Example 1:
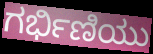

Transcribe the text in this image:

ಗರ್ಭಿಣಿಯು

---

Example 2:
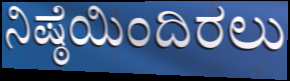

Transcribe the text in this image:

ನಿಷ್ಠೆಯಿಂದಿರಲು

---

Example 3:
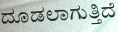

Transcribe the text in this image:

ದೂಡಲಾಗುತ್ತಿದೆ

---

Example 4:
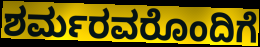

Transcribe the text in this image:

ಶರ್ಮರವರೊಂದಿಗೆ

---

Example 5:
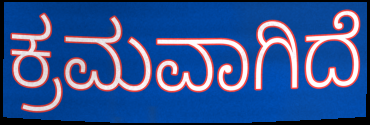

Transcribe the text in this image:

ಕ್ರಮವಾಗಿದೆ